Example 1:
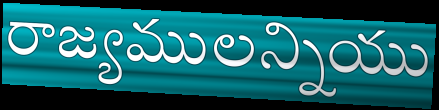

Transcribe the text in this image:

రాజ్యములన్నియు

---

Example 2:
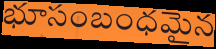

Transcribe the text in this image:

భూసంబంధమైన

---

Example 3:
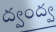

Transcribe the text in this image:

ద్వంద్వ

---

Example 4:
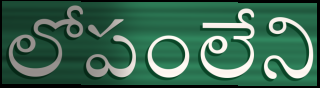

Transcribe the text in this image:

లోపంలేని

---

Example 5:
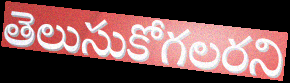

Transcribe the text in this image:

తెలుసుకోగలరని